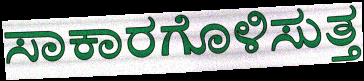
ಸಾಕಾರಗೊಳಿಸುತ್ತ